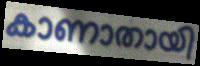
കാണാതായി